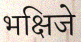
भक्षिजे